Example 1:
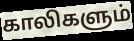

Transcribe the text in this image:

காலிகளும்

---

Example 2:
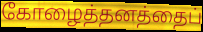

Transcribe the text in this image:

கோழைத்தனத்தைப்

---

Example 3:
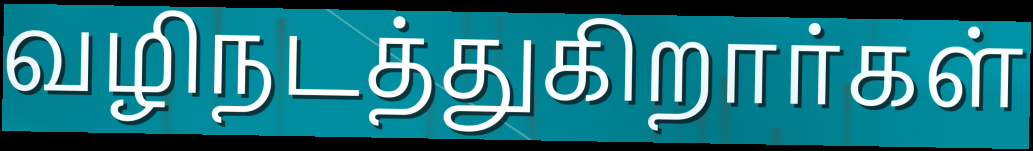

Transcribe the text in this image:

வழிநடத்துகிறார்கள்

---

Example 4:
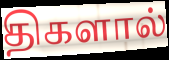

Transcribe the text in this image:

திகளால்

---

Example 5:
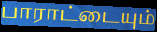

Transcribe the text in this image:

பாராட்டையும்